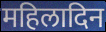
महिलादिन